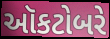
ઑકટોબરે